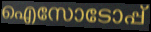
ഐസോടോപ്പ്